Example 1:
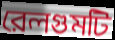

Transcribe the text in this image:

রেলগুমটি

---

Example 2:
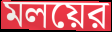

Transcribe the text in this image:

মলয়ের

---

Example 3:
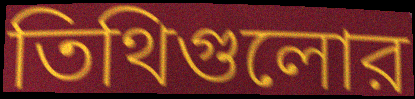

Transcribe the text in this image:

তিথিগুলোর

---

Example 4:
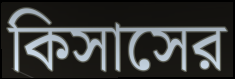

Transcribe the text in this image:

কিসাসের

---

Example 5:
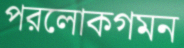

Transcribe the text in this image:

পরলোকগমন